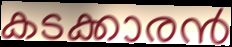
കടക്കാരൻ